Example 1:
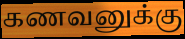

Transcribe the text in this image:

கணவனுக்கு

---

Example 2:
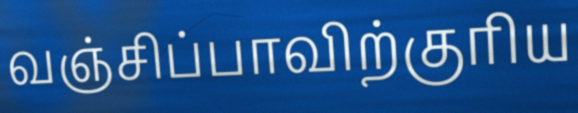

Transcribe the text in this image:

வஞ்சிப்பாவிற்குரிய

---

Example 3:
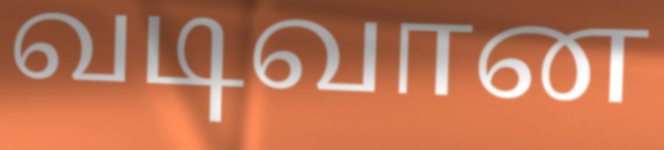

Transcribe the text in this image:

வடிவான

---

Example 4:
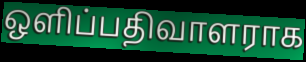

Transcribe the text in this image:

ஒளிப்பதிவாளராக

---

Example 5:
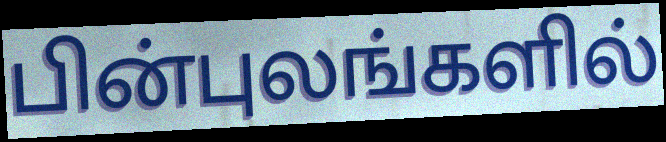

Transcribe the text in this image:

பின்புலங்களில்